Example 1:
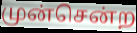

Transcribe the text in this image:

முன்சென்ற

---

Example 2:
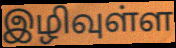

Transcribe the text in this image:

இழிவுள்ள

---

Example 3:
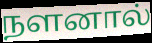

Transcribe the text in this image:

நளனால்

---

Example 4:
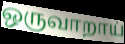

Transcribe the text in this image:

ஒருவாறாய்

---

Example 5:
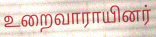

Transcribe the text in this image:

உறைவாராயினர்